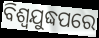
ବିଶ୍ୱଯୁଦ୍ଧପରେ